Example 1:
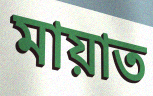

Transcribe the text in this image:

মায়াত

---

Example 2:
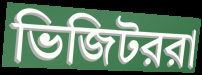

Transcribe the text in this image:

ভিজিটররা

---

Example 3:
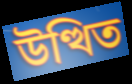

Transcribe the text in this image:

উত্থিত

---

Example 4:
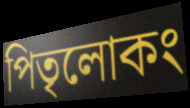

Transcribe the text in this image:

পিতৃলোকং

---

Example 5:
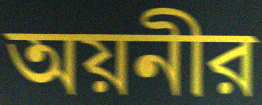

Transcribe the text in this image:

অয়নীর